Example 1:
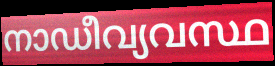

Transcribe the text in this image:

നാഡീവ്യവസ്ഥ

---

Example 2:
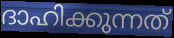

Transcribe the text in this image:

ദാഹിക്കുന്നത്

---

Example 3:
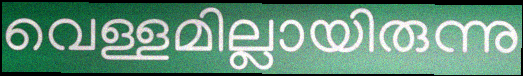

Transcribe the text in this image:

വെള്ളമില്ലായിരുന്നു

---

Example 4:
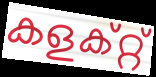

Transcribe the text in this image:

കളക്റ്റ്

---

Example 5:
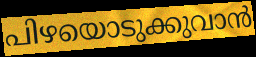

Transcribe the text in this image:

പിഴയൊടുക്കുവാൻ